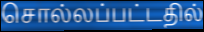
சொல்லப்பட்டதில்